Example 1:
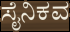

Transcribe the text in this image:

ಸೈನಿಕವ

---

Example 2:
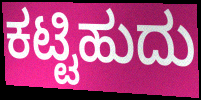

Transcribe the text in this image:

ಕಟ್ಟಿಹುದು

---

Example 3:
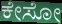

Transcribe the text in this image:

ಕೇಸೋ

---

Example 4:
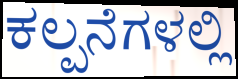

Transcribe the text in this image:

ಕಲ್ಪನೆಗಳಲ್ಲಿ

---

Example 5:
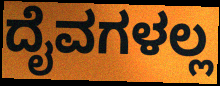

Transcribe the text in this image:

ದೈವಗಳಲ್ಲ